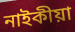
নাইকীয়া